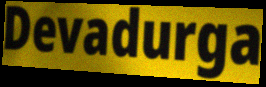
Devadurga